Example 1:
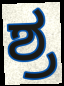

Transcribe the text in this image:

ಶ್ರ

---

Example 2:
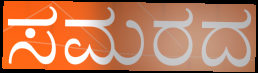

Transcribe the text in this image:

ಸಮರದ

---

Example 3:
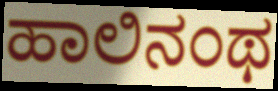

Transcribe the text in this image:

ಹಾಲಿನಂಥ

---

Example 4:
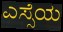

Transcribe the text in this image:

ಎಸ್ಸೆಯ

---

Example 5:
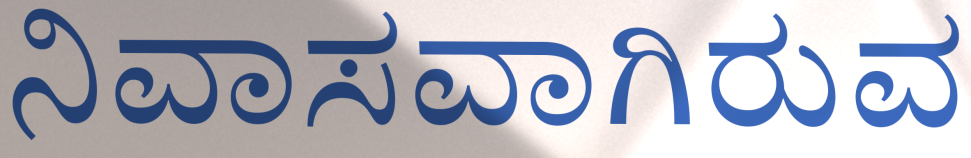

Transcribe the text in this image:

ನಿವಾಸವಾಗಿರುವ